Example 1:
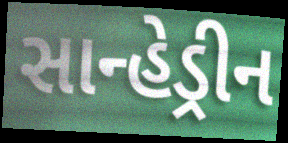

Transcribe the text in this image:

સાન્હેડ્રીન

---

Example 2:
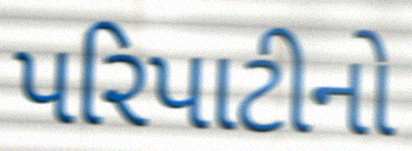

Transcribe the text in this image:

પરિપાટીનો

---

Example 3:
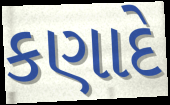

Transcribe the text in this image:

કણાદે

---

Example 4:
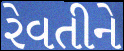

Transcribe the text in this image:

રેવતીને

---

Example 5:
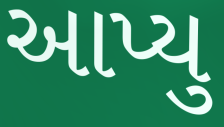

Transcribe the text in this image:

આપ્યુ